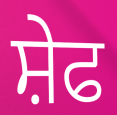
ਸ਼ੇਫ